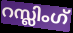
റസ്ലിംഗ്